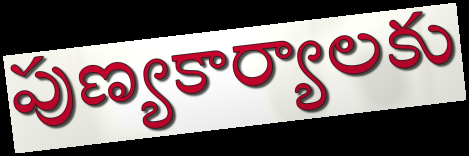
పుణ్యకార్యాలకు